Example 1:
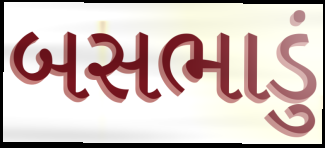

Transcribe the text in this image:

બસભાડું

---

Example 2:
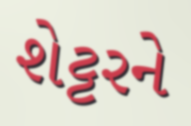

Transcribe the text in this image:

શેટ્ટરને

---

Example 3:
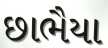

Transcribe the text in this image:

છાભૈયા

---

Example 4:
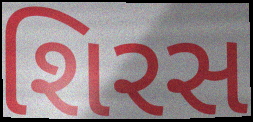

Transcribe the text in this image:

શિરસ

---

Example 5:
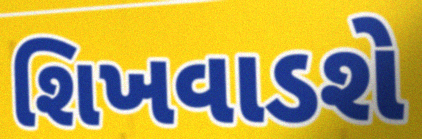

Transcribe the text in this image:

શિખવાડશે